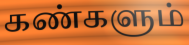
கண்களும்